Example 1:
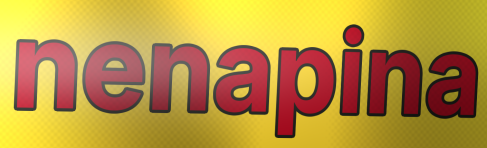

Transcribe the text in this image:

nenapina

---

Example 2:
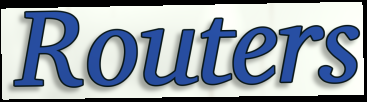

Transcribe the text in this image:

Routers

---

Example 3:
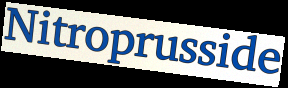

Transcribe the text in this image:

Nitroprusside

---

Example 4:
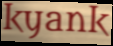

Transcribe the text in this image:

kyank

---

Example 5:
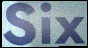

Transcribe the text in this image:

Six